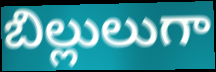
బిల్లులుగా